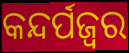
କନ୍ଦର୍ପଜ୍ବର